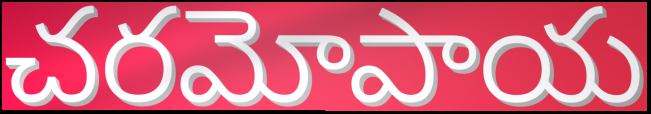
చరమోపాయ